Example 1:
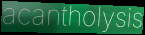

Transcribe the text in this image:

acantholysis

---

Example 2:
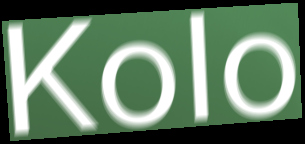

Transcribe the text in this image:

Kolo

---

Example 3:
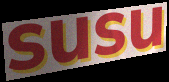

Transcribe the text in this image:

susu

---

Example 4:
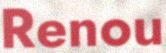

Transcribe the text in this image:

Renou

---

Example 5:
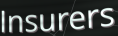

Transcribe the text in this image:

Insurers